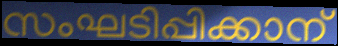
സംഘടിപ്പിക്കാന്